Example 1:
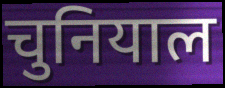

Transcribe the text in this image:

चुनियाल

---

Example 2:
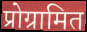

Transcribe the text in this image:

प्रोग्रामित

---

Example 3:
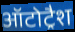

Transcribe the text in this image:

ऑटोट्रैश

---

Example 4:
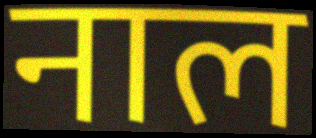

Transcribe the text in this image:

नाल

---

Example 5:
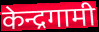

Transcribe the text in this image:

केन्द्रगामी